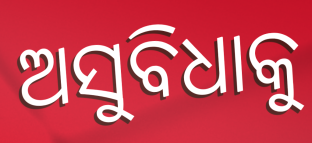
ଅସୁବିଧାକୁ